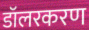
डॉलरकरण